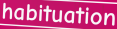
habituation